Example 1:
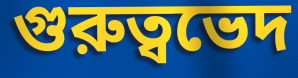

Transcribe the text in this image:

গুরুত্বভেদ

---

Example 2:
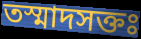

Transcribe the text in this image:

তস্মাদসক্তঃ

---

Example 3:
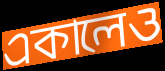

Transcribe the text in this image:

একালেও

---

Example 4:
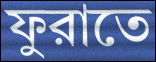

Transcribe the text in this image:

ফুরাতে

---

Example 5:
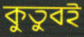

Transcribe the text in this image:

কুতুবই